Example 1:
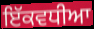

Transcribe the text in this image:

ਇੱਕਵਧੀਆ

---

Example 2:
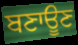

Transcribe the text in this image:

ਬਣਾਊਣ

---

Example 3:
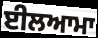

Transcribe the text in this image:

ਈਲਆਮਾ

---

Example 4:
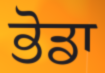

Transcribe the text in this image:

ਭੋਡਾ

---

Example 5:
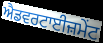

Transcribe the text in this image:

ਐਡਵਰਟਾਈਜ਼ਮੇਂਟ